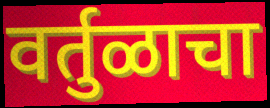
वर्तुळाचा